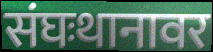
संघःथानावर